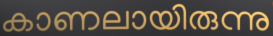
കാണലായിരുന്നു